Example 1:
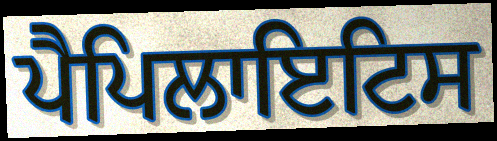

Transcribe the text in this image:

ਪੈਪਿਲਾਇਟਿਸ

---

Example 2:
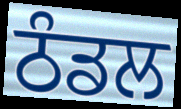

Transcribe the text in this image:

ਠੰਡਲ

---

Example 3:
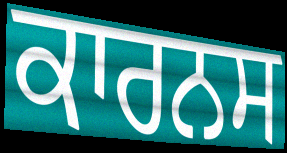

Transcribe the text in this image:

ਕਾਰਨਸ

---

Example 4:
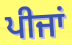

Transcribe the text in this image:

ਪੀਜਾਂ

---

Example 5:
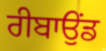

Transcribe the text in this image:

ਰੀਬਾਉਂਡ